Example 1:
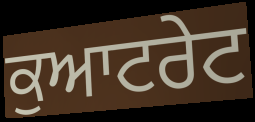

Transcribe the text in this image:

ਕੁਆਟਰੇਟ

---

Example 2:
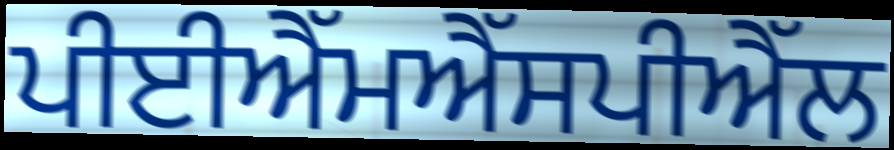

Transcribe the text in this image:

ਪੀਈਐੱਮਐੱਸਪੀਐੱਲ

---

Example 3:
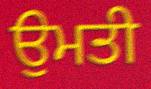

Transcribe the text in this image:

ਉਮਤੀ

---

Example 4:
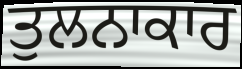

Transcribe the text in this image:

ਤੁਲਨਾਕਾਰ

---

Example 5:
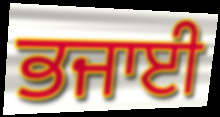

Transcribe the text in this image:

ਭਜਾਈ